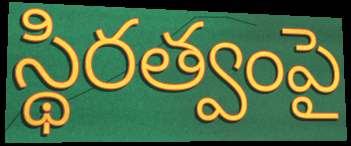
స్థిరత్వంపై